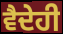
ਵੈਦੇਹੀ